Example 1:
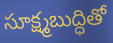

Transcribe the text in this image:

సూక్ష్మబుద్ధితో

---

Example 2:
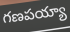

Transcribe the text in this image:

గణపయ్యా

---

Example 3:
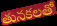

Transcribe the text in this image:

తునకలతో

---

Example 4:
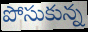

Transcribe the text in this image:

పోసుకున్న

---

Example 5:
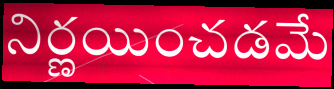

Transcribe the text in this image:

నిర్ణయించడమే